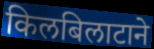
किलबिलाटाने